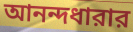
আনন্দধারার